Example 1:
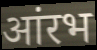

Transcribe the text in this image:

आंरभ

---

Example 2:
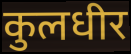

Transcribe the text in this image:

कुलधीर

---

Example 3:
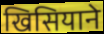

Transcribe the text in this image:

खिसियाने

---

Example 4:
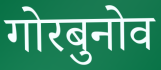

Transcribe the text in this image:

गोरबुनोव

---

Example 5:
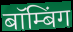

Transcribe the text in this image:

बॉम्बिंग